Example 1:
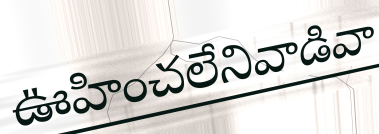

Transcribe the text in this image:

ఊహించలేనివాడివా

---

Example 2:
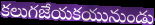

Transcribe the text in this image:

కలుగజేయకయునుండు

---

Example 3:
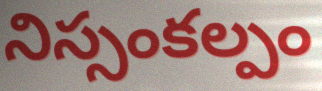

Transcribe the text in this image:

నిస్సంకల్పం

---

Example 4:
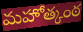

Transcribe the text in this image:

మహోత్కంఠ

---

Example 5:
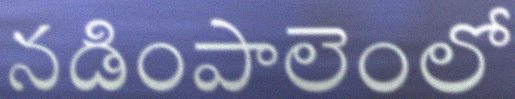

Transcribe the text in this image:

నడింపాలెంలో